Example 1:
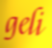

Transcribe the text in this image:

geli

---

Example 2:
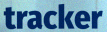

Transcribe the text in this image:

tracker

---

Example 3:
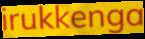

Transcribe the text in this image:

irukkenga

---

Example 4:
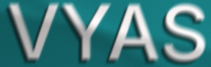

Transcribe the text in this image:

VYAS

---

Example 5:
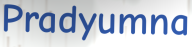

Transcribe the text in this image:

Pradyumna